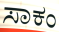
ಸಾಕಂ